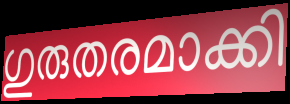
ഗുരുതരമാക്കി